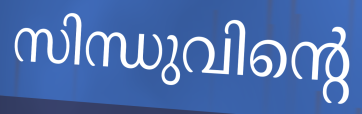
സിന്ധുവിന്റെ